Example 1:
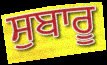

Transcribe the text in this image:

ਸੁਬਾਰੂ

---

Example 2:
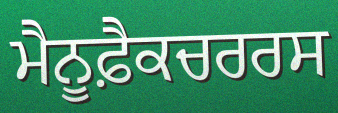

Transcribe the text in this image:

ਮੈਨੂਫ਼ੈਕਚਰਰਸ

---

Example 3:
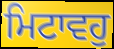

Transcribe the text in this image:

ਮਿਟਾਵਹੁ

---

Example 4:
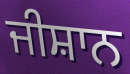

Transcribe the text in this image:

ਜੀਸ਼ਾਨ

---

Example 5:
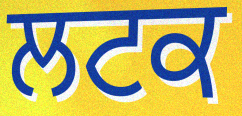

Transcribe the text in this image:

ਲਟਕ